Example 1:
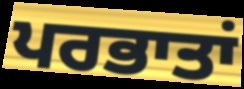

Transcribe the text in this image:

ਪਰਭਾਤਾਂ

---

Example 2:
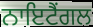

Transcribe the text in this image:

ਨਾਇਟੈਂਗਲ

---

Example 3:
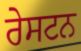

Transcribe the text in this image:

ਰੇਸਟਨ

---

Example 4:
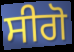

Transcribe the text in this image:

ਸੀਗੋ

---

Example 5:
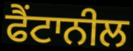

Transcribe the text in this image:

ਫੈਂਟਾਨੀਲ